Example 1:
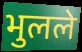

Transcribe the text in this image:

भुलले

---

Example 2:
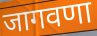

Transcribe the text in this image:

जागवणा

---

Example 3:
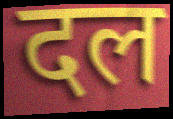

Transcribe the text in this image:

दल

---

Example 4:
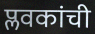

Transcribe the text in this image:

प्लवकांची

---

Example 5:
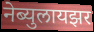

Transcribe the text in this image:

नेब्युलायझर